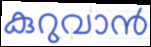
കുറുവാൻ